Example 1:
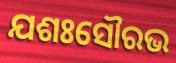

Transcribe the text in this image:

ଯଶଃସୌରଭ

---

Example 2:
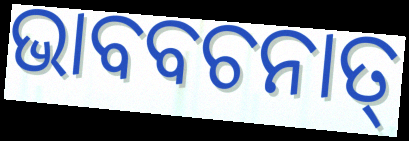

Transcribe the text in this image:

ଭାବବଚନାତ୍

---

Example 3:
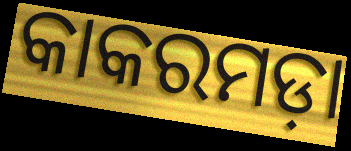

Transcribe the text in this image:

କାକରମଡ଼ା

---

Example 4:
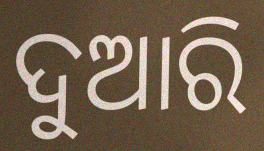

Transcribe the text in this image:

ଦୁଆରି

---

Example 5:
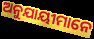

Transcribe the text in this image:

ଅନୁଯାୟୀମାନେ